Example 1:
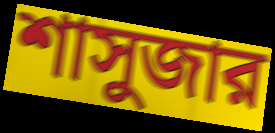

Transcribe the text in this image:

শাসুজার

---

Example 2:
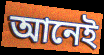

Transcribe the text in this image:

আনেই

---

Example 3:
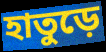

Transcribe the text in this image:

হাতুড়ে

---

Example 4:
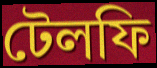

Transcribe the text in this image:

টেলফি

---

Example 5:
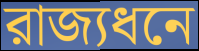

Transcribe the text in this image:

রাজ্যধনে